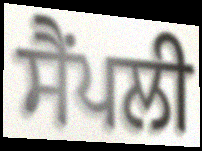
ਸੈਂਪਲੀ